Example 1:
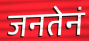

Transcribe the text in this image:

जनतेनं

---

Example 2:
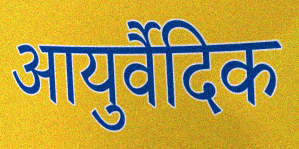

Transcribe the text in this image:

आयुर्वैदिक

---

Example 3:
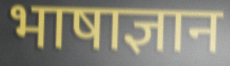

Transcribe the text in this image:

भाषाज्ञान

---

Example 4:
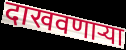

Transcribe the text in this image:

दाखवणाऱ्या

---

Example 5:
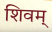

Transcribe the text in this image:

शिवम्